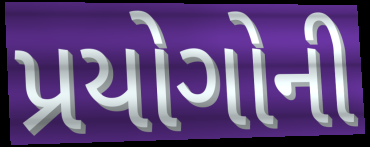
પ્રયોગોની